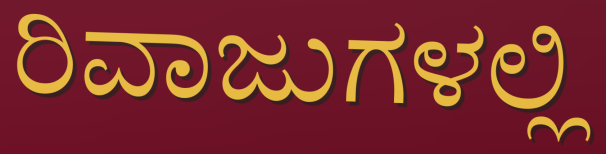
ರಿವಾಜುಗಳಲ್ಲಿ